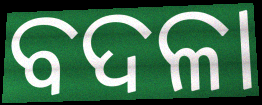
ବଦଳା